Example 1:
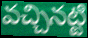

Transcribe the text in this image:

వచ్చినట్టి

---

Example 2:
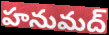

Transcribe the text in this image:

హనుమద్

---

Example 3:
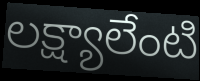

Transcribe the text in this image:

లక్ష్యాలేంటి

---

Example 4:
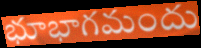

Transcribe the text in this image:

భూభాగమందు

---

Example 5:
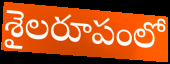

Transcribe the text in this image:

శైలరూపంలో